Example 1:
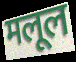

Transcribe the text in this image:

मलूल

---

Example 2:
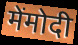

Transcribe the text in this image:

मेंमोदी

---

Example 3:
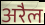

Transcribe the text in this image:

अरैल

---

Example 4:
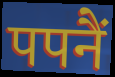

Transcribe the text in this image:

पपनैं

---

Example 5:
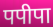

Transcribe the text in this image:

पपीपा